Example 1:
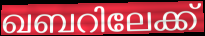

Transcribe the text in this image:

ഖബറിലേക്ക്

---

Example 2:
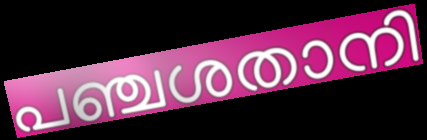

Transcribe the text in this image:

പഞ്ചശതാനി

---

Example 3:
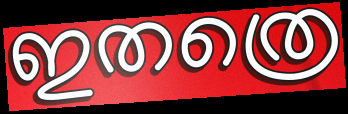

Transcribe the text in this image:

ഇതത്രെ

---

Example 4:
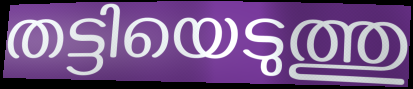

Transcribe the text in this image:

തട്ടിയെടുത്തു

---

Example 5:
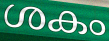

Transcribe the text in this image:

ശകം